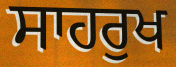
ਸਾਹਰੁਖ